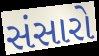
સંસારો